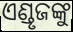
ଏଣ୍ଡୃଜଙ୍କୁ